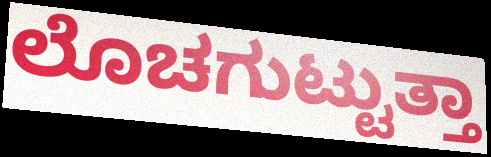
ಲೊಚಗುಟ್ಟುತ್ತಾ